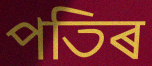
পতিৰ